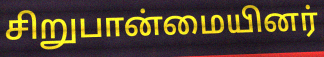
சிறுபான்மையினர்